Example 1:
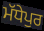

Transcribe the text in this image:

ਮੱਧੇਪੁਰ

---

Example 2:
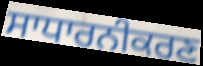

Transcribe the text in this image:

ਸਾਧਾਰਨੀਕਰਣ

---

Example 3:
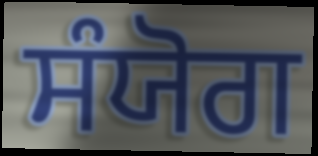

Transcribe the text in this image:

ਸੰਯੋਗ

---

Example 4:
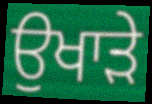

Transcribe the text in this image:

ਉਖਾੜੇ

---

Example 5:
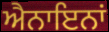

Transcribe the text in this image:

ਐਨਾਇਨਾਂ